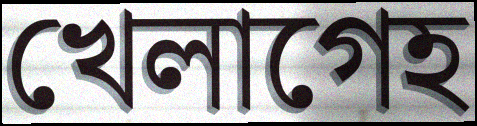
খেলাগেহ